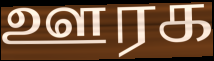
ஊரக